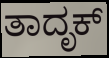
ತಾದೃಕ್